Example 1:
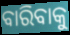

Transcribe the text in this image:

ବାରିବାକୁ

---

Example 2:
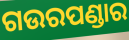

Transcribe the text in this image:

ଗଉରପଣ୍ଡାର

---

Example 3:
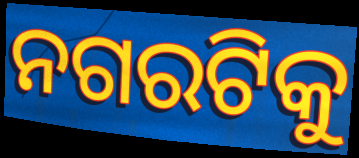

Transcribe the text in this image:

ନଗରଟିକୁ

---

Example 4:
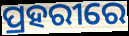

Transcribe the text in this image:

ପ୍ରହରୀରେ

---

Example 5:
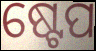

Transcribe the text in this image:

ଷ୍ଟେପ